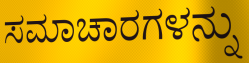
ಸಮಾಚಾರಗಳನ್ನು